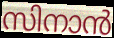
സിനാൻ